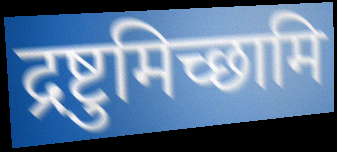
द्रष्टुमिच्छामि